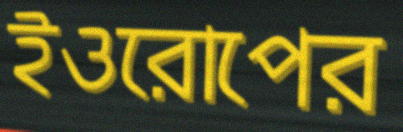
ইওরোপের